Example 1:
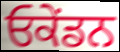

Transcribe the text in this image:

ਓਕੇਂਡਨ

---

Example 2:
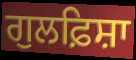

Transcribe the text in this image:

ਗੁਲਫ਼ਿਸ਼ਾ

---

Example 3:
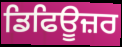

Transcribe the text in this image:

ਡਿਫਿਊਜ਼ਰ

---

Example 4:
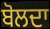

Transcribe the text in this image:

ਬੋਲਦਾ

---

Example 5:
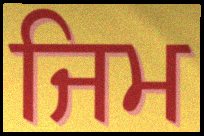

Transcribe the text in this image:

ਜਿਮ